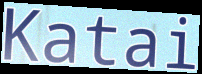
Katai